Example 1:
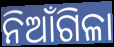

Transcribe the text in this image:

ନିଆଁଗିଳା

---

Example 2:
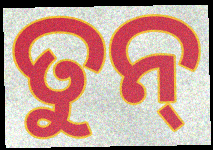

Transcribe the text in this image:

ତୁନ୍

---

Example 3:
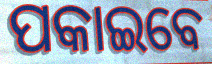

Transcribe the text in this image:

ପକାଇବେ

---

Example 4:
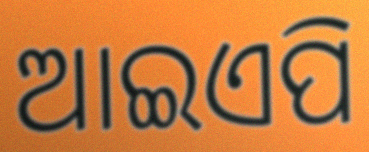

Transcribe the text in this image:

ଆଇଏପି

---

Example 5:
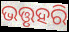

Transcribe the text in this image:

ଭତ୍ତୃହରି